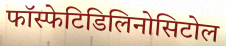
फॉस्फेटिडिलिनोसिटोल